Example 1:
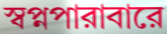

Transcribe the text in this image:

স্বপ্নপারাবারে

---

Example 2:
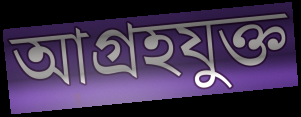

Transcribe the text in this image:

আগ্রহযুক্ত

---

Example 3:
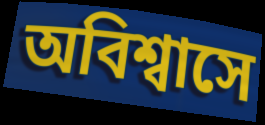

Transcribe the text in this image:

অবিশ্বাসে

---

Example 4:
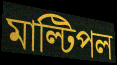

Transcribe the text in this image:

মাল্টিপল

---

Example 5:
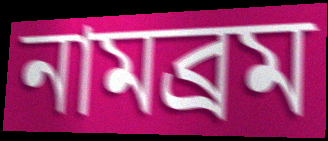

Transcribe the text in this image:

নামব্রম